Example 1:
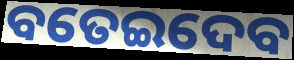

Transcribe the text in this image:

ବତେଇଦେବ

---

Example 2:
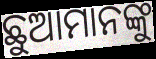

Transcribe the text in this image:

ଛୁଆମାନଙ୍କୁ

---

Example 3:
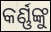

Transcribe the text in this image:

କର୍ଣ୍ଣଙ୍କୁ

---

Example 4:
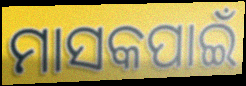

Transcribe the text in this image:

ମାସକପାଇଁ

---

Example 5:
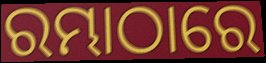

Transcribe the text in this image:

ରମ୍ଭାଠାରେ